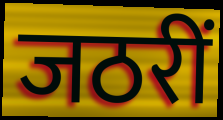
जठरीं